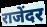
राजेंदर